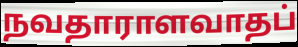
நவதாராளவாதப்